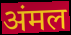
अंमल